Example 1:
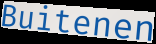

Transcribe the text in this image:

Buitenen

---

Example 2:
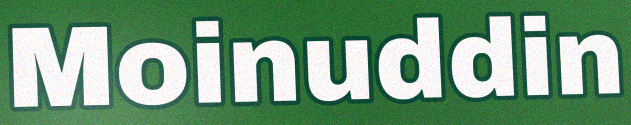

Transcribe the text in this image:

Moinuddin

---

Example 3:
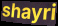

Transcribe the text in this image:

shayri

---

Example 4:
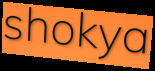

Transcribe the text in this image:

shokya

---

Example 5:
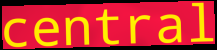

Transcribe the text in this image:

central